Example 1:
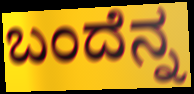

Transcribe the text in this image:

ಬಂದೆನ್ನ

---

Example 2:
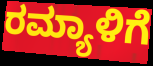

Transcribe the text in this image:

ರಮ್ಯಾಳಿಗೆ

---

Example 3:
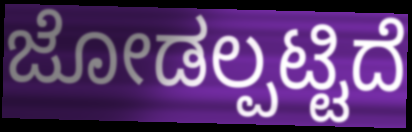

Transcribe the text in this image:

ಜೋಡಲ್ಪಟ್ಟಿದೆ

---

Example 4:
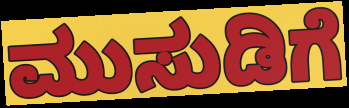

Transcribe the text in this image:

ಮುಸುಡಿಗೆ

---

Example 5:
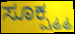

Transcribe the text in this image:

ಸೂಕ್ಷ್ಮ್ಮ